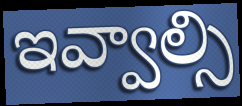
ఇవ్వాల్సి